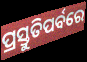
ପ୍ରସ୍ତୁତିପର୍ବରେ